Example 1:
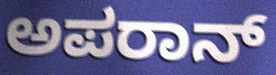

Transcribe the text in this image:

ಅಪರಾನ್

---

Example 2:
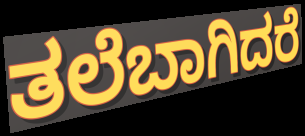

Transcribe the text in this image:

ತಲೆಬಾಗಿದರೆ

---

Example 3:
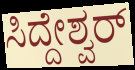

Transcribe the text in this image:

ಸಿದ್ದೇಶ್ವರ್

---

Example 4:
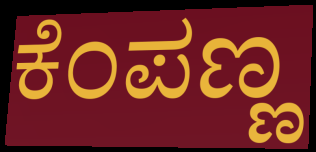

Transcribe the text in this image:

ಕೆಂಪಣ್ಣ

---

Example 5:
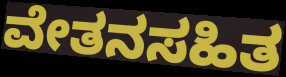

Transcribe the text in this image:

ವೇತನಸಹಿತ